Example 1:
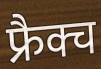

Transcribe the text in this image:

फ्रैक्च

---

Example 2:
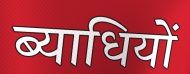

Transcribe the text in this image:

ब्याधियों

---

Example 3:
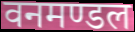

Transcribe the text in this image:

वनमण्डल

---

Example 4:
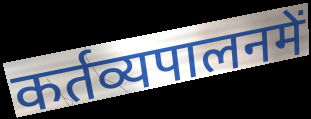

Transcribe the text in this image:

कर्तव्यपालनमें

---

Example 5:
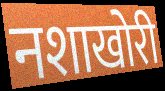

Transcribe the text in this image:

नशाखोरी